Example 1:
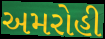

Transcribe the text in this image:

અમરોહી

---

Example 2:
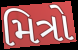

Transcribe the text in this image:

મિત્રો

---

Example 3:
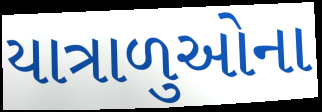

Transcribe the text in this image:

યાત્રાળુઓના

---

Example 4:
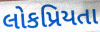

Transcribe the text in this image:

લોકપ્રિયતા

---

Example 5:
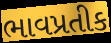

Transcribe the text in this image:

ભાવપ્રતીક